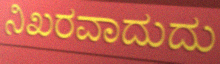
ನಿಖರವಾದುದು